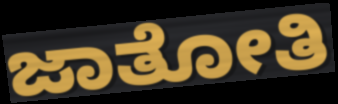
ಜಾತೋತಿ